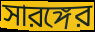
সারঙ্গের